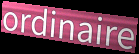
ordinaire